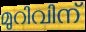
മുറിവിന്